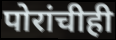
पोरांचीही